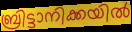
ബ്രിട്ടാനിക്കയിൽ